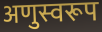
अणुस्वरूप